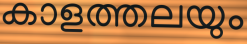
കാളത്തലയും